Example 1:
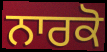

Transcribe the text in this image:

ਨਾਰਕੋ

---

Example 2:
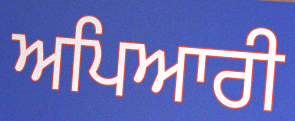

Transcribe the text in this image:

ਅਪਿਆਰੀ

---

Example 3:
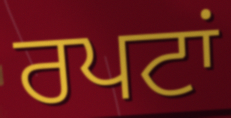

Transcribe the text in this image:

ਰਪਟਾਂ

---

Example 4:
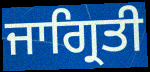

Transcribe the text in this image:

ਜਾਗ੍ਰਿਤੀ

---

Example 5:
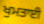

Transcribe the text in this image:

ਖੁਮਤਾਈ